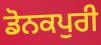
ਡੋਨਕਪੁਰੀ